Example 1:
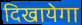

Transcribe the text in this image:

दिखायेगा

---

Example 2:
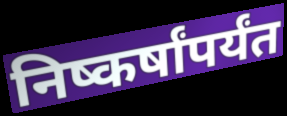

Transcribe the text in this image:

निष्कर्षांपर्यंत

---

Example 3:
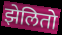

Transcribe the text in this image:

झेलितो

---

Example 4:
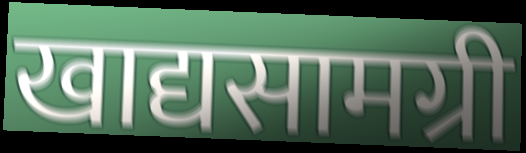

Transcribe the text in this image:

खाद्यसामग्री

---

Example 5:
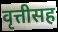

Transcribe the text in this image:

वृत्तीसह